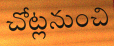
చోట్లనుంచి